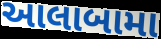
આલાબામા